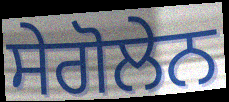
ਸੇਗੋਲੇਨ